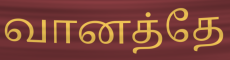
வானத்தே